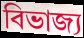
বিভাজ্য